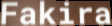
Fakira